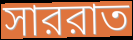
সাররাত